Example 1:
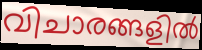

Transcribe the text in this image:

വിചാരങ്ങളിൽ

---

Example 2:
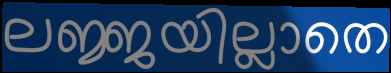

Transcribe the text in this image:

ലജ്ജയില്ലാതെ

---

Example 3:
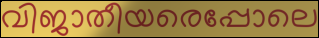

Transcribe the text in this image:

വിജാതീയരെപ്പോലെ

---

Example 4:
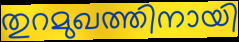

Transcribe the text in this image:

തുറമുഖത്തിനായി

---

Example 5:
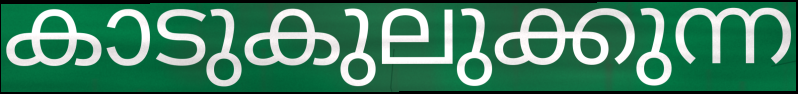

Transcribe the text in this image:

കാടുകുലുക്കുന്ന